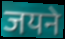
जयने